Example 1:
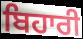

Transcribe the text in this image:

ਬਿਹਾਰੀ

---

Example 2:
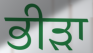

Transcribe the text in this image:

ਭੀੜਾ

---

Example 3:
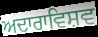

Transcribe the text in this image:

ਅਦਾਰਾਵਿਸ਼ਵ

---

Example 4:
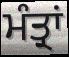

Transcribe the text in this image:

ਮੰਤ੍ਰਾਂ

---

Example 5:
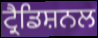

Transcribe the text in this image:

ਟ੍ਰੈਡਿਸ਼ਨਲ